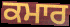
ਕਮਾਰ